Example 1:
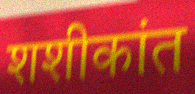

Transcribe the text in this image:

शशीकांत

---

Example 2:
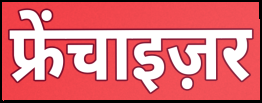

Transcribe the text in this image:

फ्रेंचाइज़र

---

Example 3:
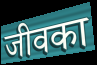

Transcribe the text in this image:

जीवका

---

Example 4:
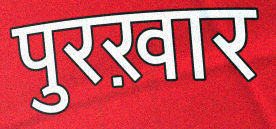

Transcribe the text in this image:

पुरख़ार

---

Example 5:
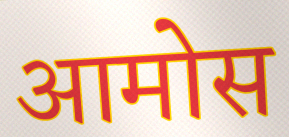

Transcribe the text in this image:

आमोस